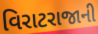
વિરાટરાજાની